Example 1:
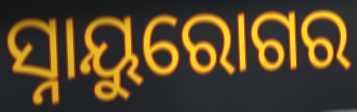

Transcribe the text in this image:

ସ୍ନାୟୁରୋଗର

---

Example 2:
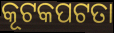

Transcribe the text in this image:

କୂଟକପଟତା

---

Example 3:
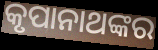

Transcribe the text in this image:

କୃପାନାଥଙ୍କର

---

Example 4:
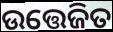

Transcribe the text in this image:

ଉତ୍ତେଜିତ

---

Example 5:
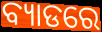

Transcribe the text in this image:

ବ୍ୟାଡରେ